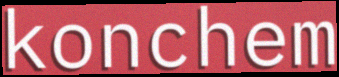
konchem